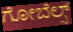
ಗೋಬೆಲ್ಸ್